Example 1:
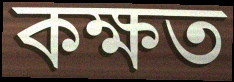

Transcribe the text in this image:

কক্ষত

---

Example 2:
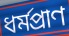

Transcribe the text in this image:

ধৰ্মপ্ৰাণ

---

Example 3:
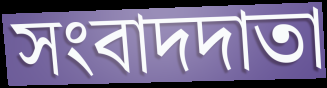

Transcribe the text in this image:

সংবাদদাতা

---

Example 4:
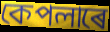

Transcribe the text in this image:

কেপলাৰে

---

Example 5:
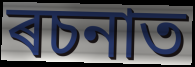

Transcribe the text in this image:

ৰচনাত